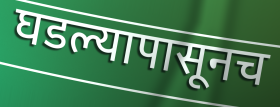
घडल्यापासूनच